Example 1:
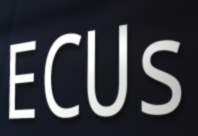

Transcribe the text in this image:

ECUs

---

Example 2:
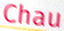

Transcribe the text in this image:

Chau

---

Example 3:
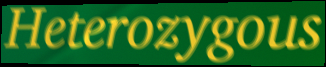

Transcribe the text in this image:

Heterozygous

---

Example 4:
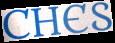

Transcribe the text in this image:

CHES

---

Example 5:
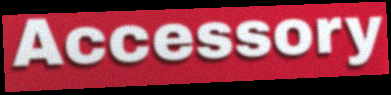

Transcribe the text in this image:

Accessory